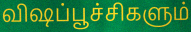
விஷப்பூச்சிகளும்